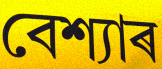
বেশ্যাৰ